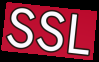
SSL